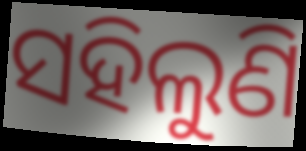
ସହିଲୁଣି